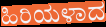
ಹಿರಿಯಳಾದ